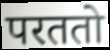
परततो